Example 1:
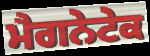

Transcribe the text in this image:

ਮੈਗਨੇਟੇਕ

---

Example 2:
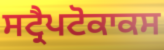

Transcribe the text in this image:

ਸਟ੍ਰੈਪਟੋਕਾਕਸ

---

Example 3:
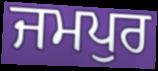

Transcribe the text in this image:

ਜਮਪੁਰ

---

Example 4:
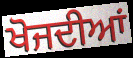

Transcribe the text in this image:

ਖੋਜਦੀਆਂ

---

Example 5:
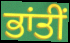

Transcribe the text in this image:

ਭਾਂਤੀਂ